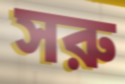
সরু